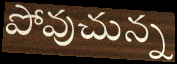
పోవుచున్న